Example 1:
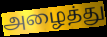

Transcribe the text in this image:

அழைத்து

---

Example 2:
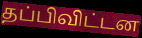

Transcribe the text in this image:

தப்பிவிட்டன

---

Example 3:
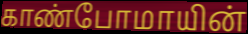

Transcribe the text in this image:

காண்போமாயின்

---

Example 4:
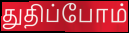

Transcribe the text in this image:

துதிப்போம்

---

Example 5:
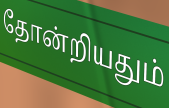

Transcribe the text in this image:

தோன்றியதும்